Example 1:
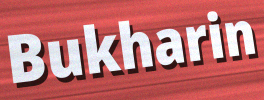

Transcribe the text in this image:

Bukharin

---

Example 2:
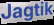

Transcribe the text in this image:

Jagtik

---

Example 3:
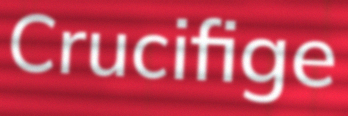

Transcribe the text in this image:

Crucifige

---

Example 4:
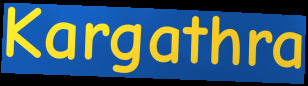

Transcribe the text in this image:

Kargathra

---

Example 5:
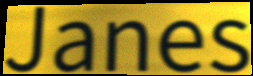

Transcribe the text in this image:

Janes